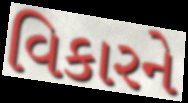
વિકારને